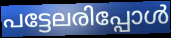
പട്ടേലരിപ്പോൾ